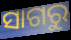
ସାଗରୁ